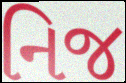
નિજ